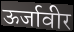
ऊर्जावीर